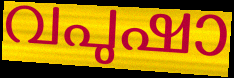
വപുഷാ